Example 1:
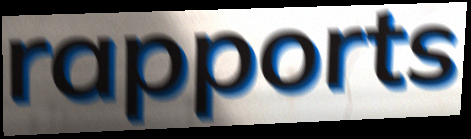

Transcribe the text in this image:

rapports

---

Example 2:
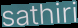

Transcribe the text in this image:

sathiri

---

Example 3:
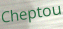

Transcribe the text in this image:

Cheptou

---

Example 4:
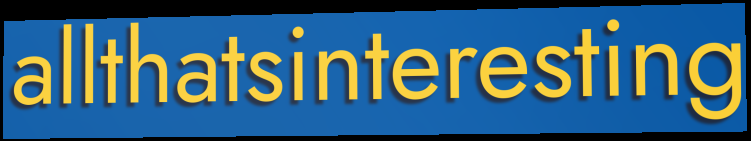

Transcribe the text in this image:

allthatsinteresting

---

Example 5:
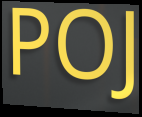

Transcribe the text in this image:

POJ